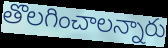
తొలగించాలన్నారు